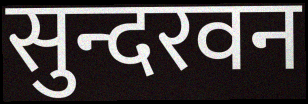
सुन्दरवन